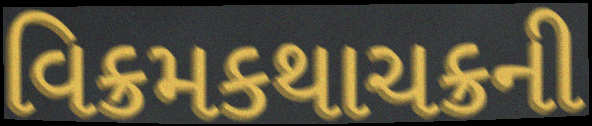
વિક્રમકથાચક્રની